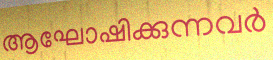
ആഘോഷിക്കുന്നവർ